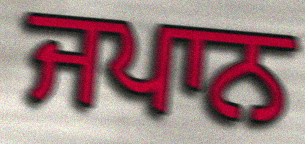
ਜਪਾਨ